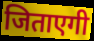
जिताएगी